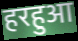
हरहुआ